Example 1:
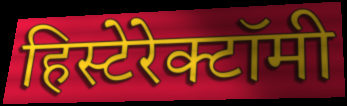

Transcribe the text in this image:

हिस्टेरेक्टॉमी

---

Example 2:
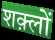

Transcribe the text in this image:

शक़्लों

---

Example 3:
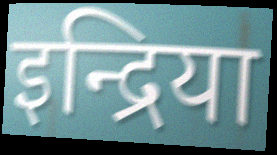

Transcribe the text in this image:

इन्द्रिया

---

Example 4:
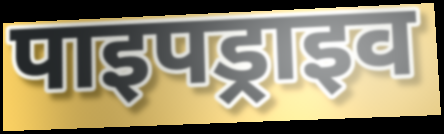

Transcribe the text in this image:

पाइपड्राइव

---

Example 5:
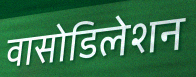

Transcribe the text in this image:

वासोडिलेशन